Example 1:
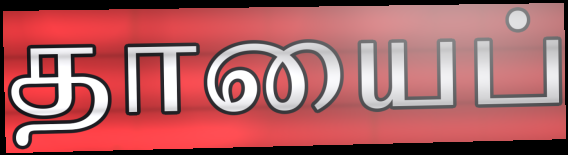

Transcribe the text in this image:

தாயைப்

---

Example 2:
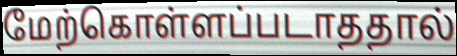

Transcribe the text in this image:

மேற்கொள்ளப்படாததால்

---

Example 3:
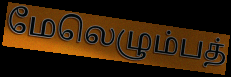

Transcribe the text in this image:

மேலெழும்பத்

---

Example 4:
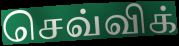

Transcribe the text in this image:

செவ்விக்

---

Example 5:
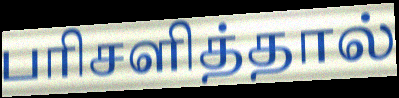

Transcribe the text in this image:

பரிசளித்தால்